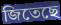
জিতেছে